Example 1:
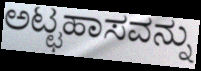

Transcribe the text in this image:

ಅಟ್ಟಹಾಸವನ್ನು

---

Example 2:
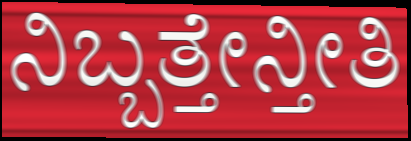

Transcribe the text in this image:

ನಿಬ್ಬತ್ತೇನ್ತೀತಿ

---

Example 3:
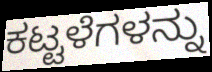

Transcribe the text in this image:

ಕಟ್ಟಳೆಗಳನ್ನು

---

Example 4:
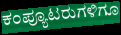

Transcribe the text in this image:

ಕಂಪ್ಯೂಟರುಗಳಿಗೂ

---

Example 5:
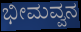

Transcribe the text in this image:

ಭೀಮವ್ವನ